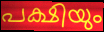
പക്ഷിയും